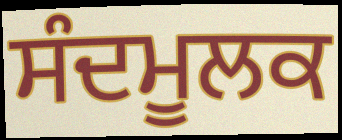
ਸੰਦਮੂਲਕ